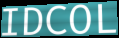
IDCOL